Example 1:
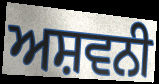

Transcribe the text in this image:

ਅਸ਼ਵਨੀ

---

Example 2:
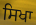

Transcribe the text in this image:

ਸਿਖਾ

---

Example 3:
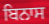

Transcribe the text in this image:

ਬਿਨਾਸ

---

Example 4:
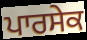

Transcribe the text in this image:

ਪਾਰਸੇਕ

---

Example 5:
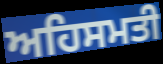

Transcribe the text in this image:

ਅਹਿਸਮਤੀ